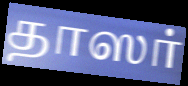
தாஸர்